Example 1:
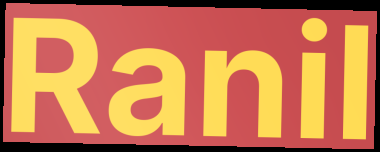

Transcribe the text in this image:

Ranil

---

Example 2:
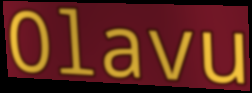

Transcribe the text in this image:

Olavu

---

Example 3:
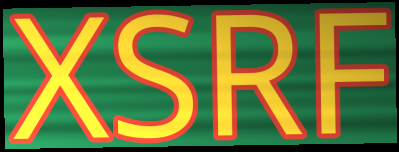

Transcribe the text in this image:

XSRF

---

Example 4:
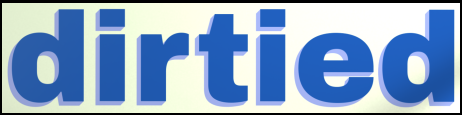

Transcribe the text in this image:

dirtied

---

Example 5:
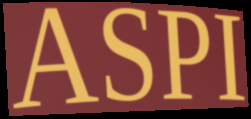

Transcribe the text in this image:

ASPI